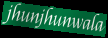
jhunjhunwala